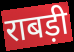
राबड़ी